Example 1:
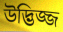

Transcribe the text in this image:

উদ্ভিজ্জ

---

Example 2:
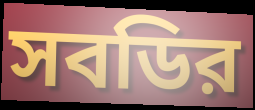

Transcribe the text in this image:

সবডির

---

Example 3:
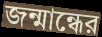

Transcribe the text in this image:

জন্মান্ধের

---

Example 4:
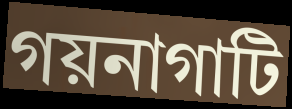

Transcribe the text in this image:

গয়নাগাটি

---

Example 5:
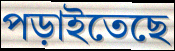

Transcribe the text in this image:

পড়াইতেছে